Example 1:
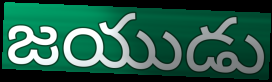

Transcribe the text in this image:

జయుడు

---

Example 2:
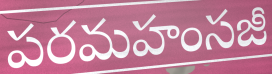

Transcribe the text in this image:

పరమహంసజీ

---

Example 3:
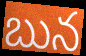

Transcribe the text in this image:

బున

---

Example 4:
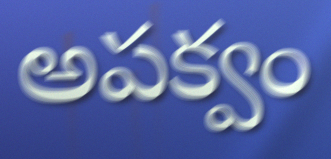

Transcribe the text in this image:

అపక్వం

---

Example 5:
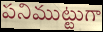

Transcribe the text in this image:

పనిముట్టుగా